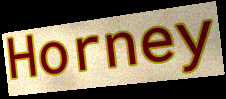
Horney